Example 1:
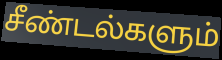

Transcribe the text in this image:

சீண்டல்களும்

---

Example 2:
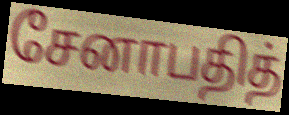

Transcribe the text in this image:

சேனாபதித்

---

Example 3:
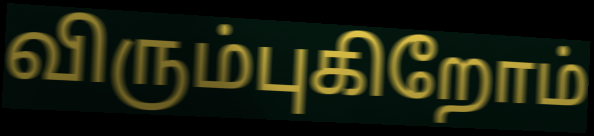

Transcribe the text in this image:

விரும்புகிறோம்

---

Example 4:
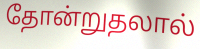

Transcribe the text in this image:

தோன்றுதலால்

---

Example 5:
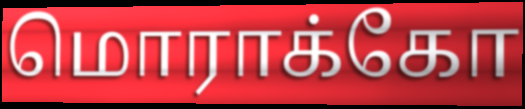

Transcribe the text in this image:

மொராக்கோ